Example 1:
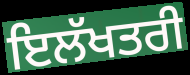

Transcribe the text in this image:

ਇਲੱਖਤਰੀ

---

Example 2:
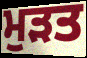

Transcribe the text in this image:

ਮੁੜਤ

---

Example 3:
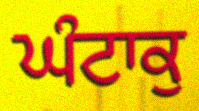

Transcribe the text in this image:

ਘੰਟਾਕੁ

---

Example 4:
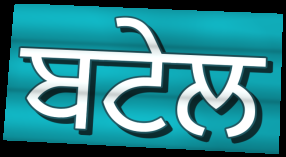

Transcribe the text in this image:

ਬਟੇਲ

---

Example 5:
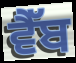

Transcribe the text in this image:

ਵੈੱਬ